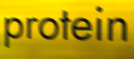
protein